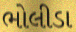
ભોલીડા